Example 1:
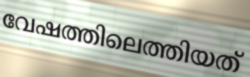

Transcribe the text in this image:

വേഷത്തിലെത്തിയത്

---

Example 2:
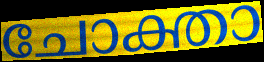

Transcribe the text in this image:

ചോക്താ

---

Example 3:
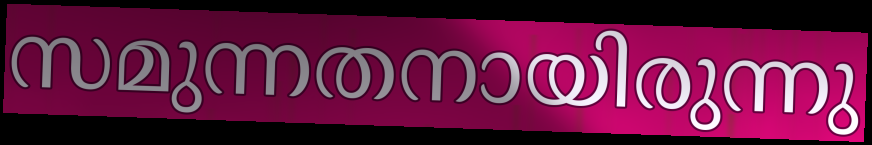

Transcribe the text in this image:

സമുന്നതനായിരുന്നു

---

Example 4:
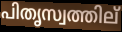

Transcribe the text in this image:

പിതൃസ്വത്തില്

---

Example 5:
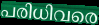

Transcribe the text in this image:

പരിധിവരെ